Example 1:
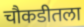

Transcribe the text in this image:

चौकडीतला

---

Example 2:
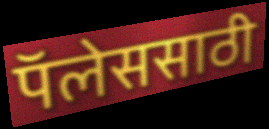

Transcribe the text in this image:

पॅलेससाठी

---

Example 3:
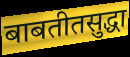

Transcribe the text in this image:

बाबतीतसुद्धा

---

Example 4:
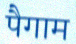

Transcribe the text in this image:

पैगाम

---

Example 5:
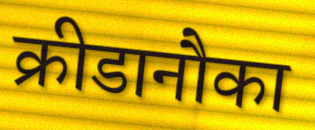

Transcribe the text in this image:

क्रीडानौका